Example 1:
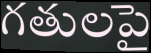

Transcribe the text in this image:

గతులపై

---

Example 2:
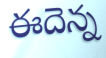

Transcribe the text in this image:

ఈదెన్న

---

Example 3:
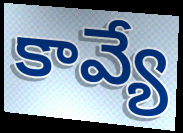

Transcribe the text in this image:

కావ్యే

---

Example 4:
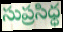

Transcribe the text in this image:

సుప్రసిధ్ధ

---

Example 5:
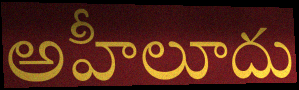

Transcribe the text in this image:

అహీలూదు